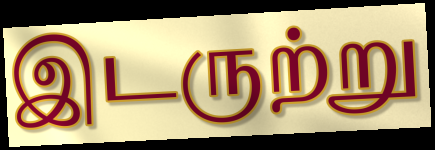
இடருற்று